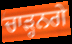
ਚਾੜ੍ਹਨਗੇ